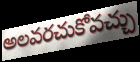
అలవరచుకోవచ్చు